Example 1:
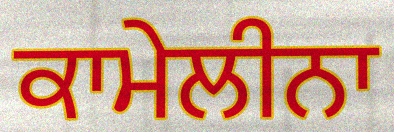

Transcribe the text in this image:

ਕਾਮੇਲੀਨਾ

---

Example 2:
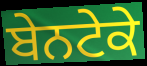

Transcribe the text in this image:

ਬੇਨਟੇਕੇ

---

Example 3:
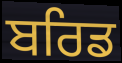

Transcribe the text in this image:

ਬਰਿਡ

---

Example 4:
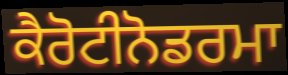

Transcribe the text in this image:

ਕੈਰੋਟੀਨੋਡਰਮਾ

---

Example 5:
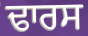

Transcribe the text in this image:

ਢਾਰਸ